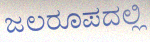
ಜಲರೂಪದಲ್ಲಿ